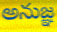
అనుజ్ఞ